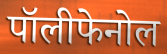
पॉलीफेनोल